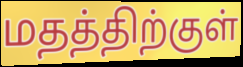
மதத்திற்குள்